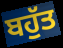
ਬਹੁੱਤ